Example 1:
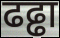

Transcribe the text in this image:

ढढ्ढा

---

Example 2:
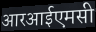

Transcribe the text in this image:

आरआईएमसी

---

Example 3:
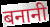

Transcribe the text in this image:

बनानी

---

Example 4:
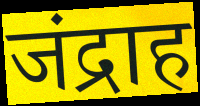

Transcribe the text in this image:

जंद्राह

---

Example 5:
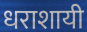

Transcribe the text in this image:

धराशायी